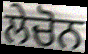
ਲੇਚੋਨ